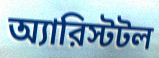
অ্যারিস্টটল